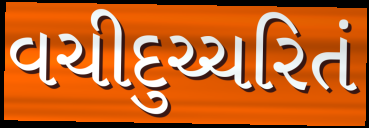
વચીદુચ્ચરિતં